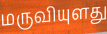
மருவியுளது